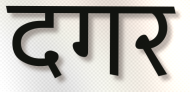
दगर